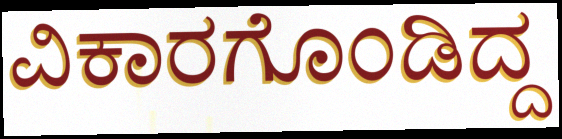
ವಿಕಾರಗೊಂಡಿದ್ದ